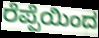
ರೆಪ್ಪೆಯಿಂದ